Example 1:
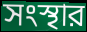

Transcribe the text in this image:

সংস্থার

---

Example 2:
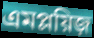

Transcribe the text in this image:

এমপ্লয়িজ়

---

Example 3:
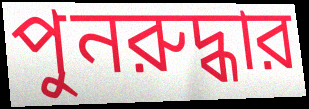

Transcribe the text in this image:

পুনরুদ্ধার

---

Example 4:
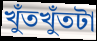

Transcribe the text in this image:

খুঁতখুঁতটা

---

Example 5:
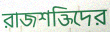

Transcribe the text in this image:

রাজশক্তিদের